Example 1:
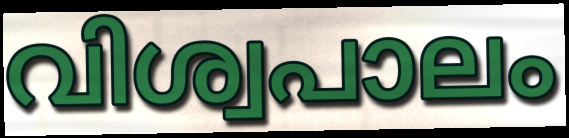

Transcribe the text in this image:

വിശ്വപാലം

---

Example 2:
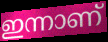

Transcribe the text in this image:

ഇന്നാണ്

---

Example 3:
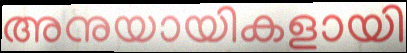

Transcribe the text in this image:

അനുയായികളായി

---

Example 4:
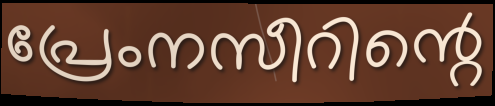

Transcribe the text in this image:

പ്രേംനസീറിന്റെ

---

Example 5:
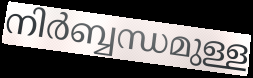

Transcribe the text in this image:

നിർബ്ബന്ധമുള്ള